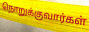
நொறுக்குவார்கள்